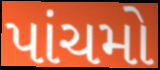
પાંચમો